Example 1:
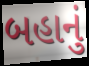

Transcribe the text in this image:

બહાનું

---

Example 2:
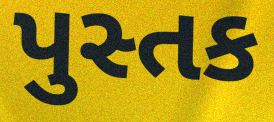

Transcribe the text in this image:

પુસ્તક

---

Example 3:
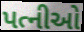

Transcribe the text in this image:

પત્નીઓ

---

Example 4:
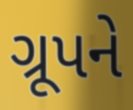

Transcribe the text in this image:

ગ્રૂપને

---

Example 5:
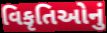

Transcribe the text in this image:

વિકૃતિઓનું